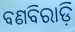
ବଣବିରାଡ଼ି